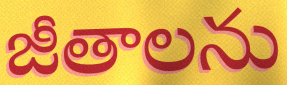
జీతాలను